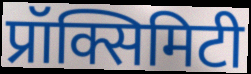
प्रॉक्सिमिटी